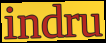
indru